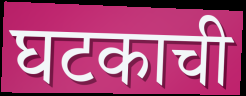
घटकाची